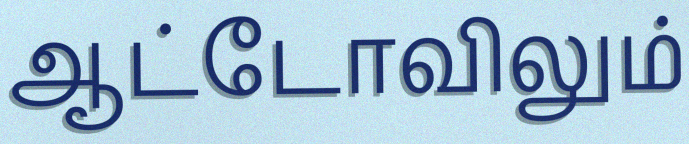
ஆட்டோவிலும்